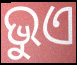
ଭୁଏ